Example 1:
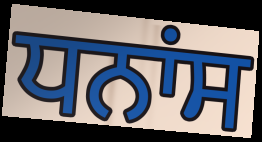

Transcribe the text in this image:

ਧਨਾਂਸ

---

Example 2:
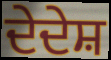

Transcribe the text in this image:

ਦੇਦੇਸ਼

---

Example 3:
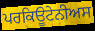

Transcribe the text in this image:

ਪਰਕਿਊਟੇਨੀਅਸ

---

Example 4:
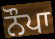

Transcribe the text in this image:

ਨੌਪਾ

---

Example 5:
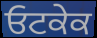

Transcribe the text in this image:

ਓਟਕੇਕ